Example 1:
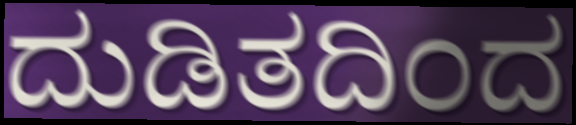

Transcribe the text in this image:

ದುಡಿತದಿಂದ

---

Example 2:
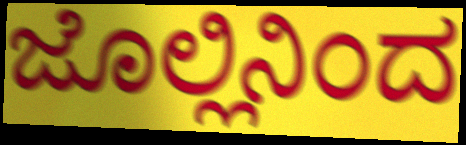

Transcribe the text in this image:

ಜೊಲ್ಲಿನಿಂದ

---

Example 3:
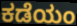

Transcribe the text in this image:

ಕಡೆಯಂ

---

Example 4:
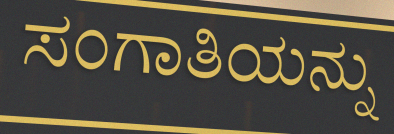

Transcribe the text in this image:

ಸಂಗಾತಿಯನ್ನು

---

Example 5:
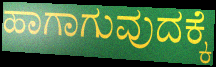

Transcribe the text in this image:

ಹಾಗಾಗುವುದಕ್ಕೆ